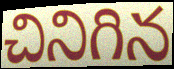
చినిగిన